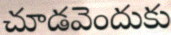
చూడవెందుకు